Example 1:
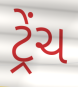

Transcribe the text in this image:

ટ્રેંચ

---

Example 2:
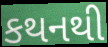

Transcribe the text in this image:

કથનથી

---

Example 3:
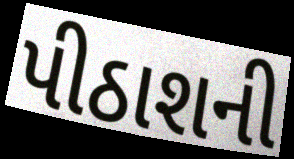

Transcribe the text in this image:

પીઠાશની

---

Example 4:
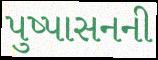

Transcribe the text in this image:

પુષ્પાસનની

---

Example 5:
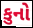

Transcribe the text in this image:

કુનો